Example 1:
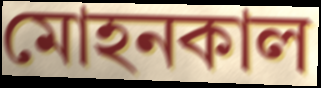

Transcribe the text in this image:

মোহনকাল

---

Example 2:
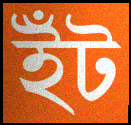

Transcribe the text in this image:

ইঁট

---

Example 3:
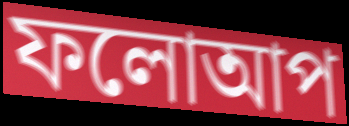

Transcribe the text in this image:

ফলোআপ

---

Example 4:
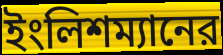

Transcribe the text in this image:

ইংলিশম্যানের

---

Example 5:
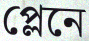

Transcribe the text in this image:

প্লেনে